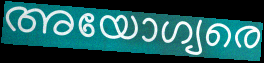
അയോഗ്യരെ